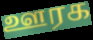
ஊரக